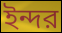
ইন্দর